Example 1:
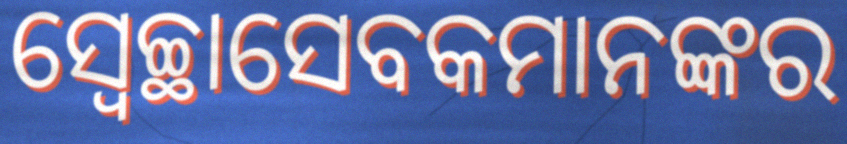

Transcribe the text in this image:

ସ୍ୱେଚ୍ଛାସେବକମାନଙ୍କର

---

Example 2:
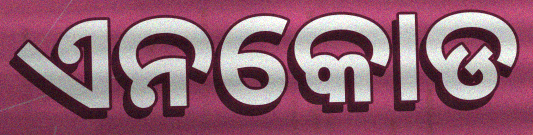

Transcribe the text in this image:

ଏନକୋଡ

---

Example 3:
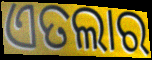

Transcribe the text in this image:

ଏତଲାର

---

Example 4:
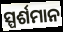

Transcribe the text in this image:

ସ୍ପର୍ଶମାନ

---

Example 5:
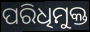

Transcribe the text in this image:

ପରିଧିମୁକ୍ତ